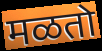
मळतो